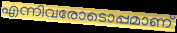
എന്നിവരോടൊപ്പമാണ്